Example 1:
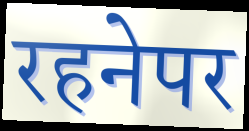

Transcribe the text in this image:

रहनेपर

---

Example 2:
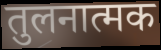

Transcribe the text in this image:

तुलनात्मक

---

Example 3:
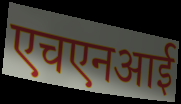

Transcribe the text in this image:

एचएनआई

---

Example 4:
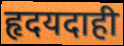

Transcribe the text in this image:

हृदयदाही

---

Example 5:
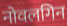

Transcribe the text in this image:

नोवलगिन